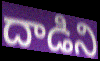
దాడిని